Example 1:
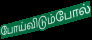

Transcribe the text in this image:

போய்விடும்போல்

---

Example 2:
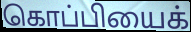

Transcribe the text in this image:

கொப்பியைக்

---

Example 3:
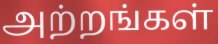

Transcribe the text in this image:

அற்றங்கள்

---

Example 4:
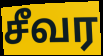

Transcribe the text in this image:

சீவர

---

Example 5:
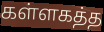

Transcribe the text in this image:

கள்ளகத்த